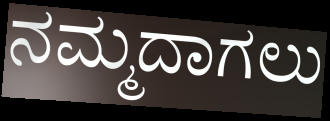
ನಮ್ಮದಾಗಲು